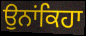
ਉਨਾਂਕਿਹਾ